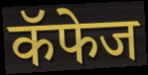
कॅफेज